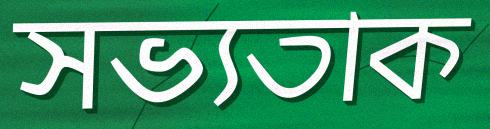
সভ্যতাক